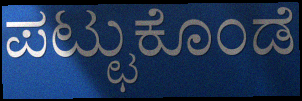
ಪಟ್ಟುಕೊಂಡೆ